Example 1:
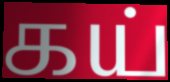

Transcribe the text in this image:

கய்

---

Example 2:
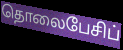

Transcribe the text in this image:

தொலைபேசிப்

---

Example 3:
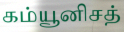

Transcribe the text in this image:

கம்யூனிசத்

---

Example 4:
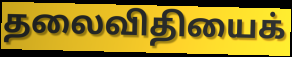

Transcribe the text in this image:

தலைவிதியைக்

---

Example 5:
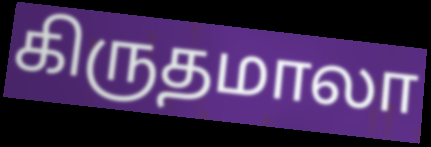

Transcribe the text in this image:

கிருதமாலா